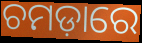
ଚମଡ଼ାରେ